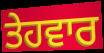
ਤੇਹਵਾਰ